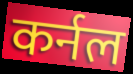
कर्नल